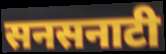
सनसनाटी